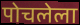
पोचलेला